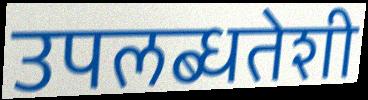
उपलब्धतेशी